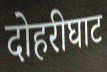
दोहरीघाट